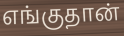
எங்குதான்